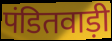
पंडितवाड़ी